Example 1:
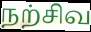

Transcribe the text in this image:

நற்சிவ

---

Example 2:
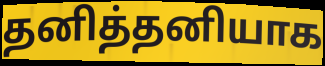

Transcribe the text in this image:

தனித்தனியாக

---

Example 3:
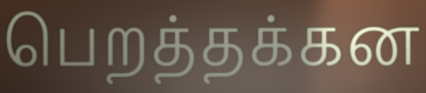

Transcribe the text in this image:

பெறத்தக்கன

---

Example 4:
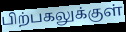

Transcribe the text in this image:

பிற்பகலுக்குள்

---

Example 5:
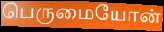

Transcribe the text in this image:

பெருமையோன்